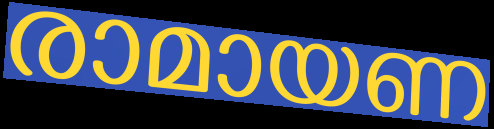
രാമായണ